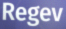
Regev